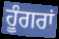
ਹੂੰਗਰਾਂ